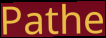
Pathe